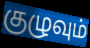
குழுவும்